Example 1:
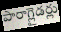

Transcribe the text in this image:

పారాగ్లైడర్లు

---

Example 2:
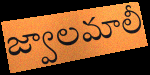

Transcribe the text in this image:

జ్వాలమాలీ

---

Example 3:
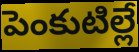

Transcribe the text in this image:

పెంకుటిల్లే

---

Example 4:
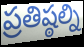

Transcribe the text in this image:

ప్రతిష్ఠల్ని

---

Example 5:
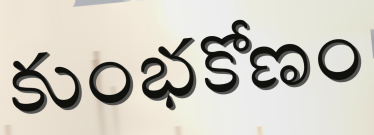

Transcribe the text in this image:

కుంభకోణం